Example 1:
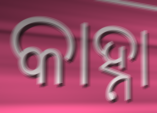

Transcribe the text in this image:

କାହ୍ନା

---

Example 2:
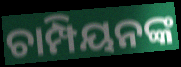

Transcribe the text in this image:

ଚାମ୍ପିୟନଙ୍କ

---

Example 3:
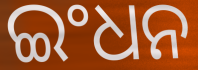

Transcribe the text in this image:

ଇଂଧନ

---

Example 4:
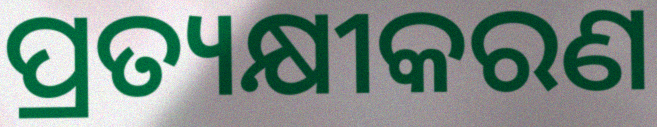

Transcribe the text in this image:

ପ୍ରତ୍ୟକ୍ଷୀକରଣ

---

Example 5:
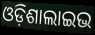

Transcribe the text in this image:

ଓଡ଼ିଶାଲାଇଭ